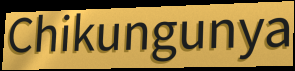
Chikungunya